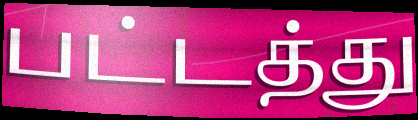
பட்டத்து